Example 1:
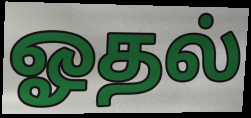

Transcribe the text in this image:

ஓதல்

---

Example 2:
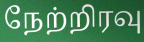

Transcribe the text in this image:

நேற்றிரவு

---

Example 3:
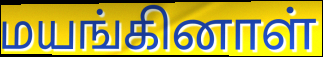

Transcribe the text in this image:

மயங்கினாள்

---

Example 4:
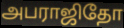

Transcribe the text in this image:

அபராஜிதோ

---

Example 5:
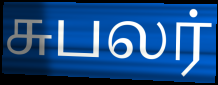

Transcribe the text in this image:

சுபலர்